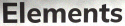
Elements